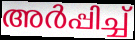
അർപ്പിച്ച്